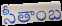
సీతాంబ